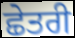
ਛੇਤਰੀ